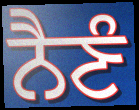
ਨੈਣੰ